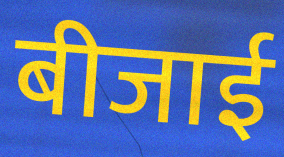
बीजाई